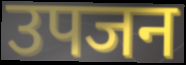
उपजन